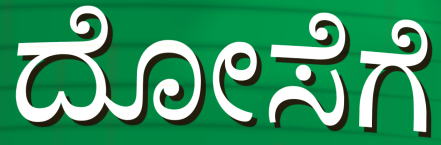
ದೋಸೆಗೆ